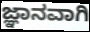
ಜ್ಞಾನವಾಗಿ